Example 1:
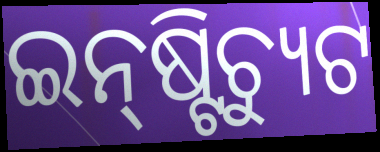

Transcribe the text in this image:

ଇନ୍‍ଷ୍ଟିଚ୍ୟୁଟ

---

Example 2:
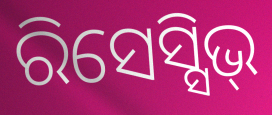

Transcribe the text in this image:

ରିସେସ୍ସିଭ୍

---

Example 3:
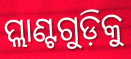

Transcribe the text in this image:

ପ୍ଲାଣ୍ଟଗୁଡ଼ିକୁ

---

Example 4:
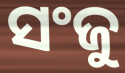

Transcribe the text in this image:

ସଂଜୁ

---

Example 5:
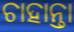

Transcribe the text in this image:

ଚାହାନ୍ତା